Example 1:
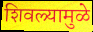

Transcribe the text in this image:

शिवल्यामुळे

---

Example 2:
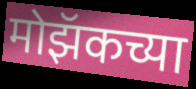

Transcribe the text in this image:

मोझॅकच्या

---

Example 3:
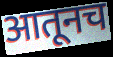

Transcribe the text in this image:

आतूनच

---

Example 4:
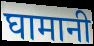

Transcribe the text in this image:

घामानी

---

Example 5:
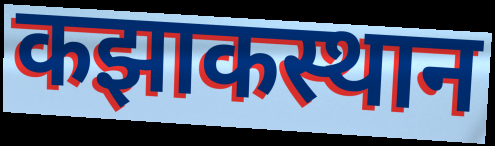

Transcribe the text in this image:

कझाकस्थान